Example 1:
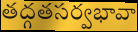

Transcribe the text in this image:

తద్గతసర్వభావా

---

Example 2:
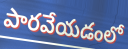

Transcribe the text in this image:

పారవేయడంలో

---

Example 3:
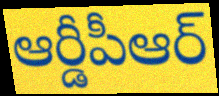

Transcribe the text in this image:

ఆర్డీపీఆర్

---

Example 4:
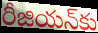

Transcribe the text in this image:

రీజియన్‌కు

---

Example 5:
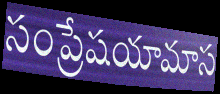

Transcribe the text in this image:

సంప్రేషయామాస